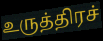
உருத்திரச்